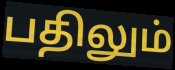
பதிலும்